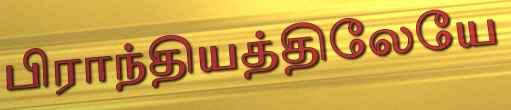
பிராந்தியத்திலேயே